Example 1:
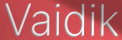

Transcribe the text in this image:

Vaidik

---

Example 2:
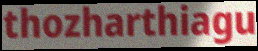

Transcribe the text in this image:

thozharthiagu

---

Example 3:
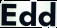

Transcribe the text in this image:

Edd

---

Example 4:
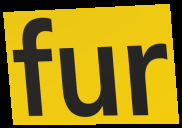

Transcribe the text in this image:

fur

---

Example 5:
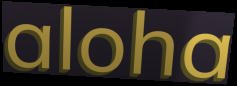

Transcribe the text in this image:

aloha